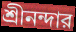
শ্রীনন্দার